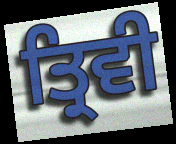
ਤ੍ਰਿਵੀ